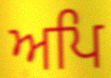
ਅਪਿ